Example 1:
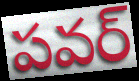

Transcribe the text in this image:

పవర్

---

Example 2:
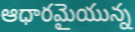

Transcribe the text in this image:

ఆధారమైయున్న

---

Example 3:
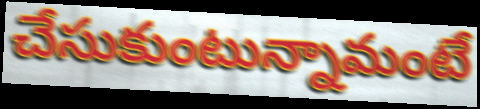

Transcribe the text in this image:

చేసుకుంటున్నామంటే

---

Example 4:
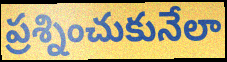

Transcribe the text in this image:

ప్రశ్నించుకునేలా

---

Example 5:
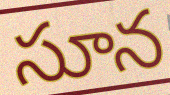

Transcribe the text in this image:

సూన